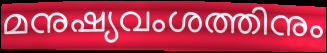
മനുഷ്യവംശത്തിനും